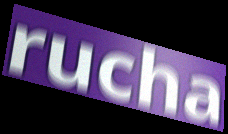
rucha